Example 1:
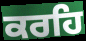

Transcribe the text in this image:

ਕਰਹਿ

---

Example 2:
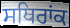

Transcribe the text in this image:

ਸਥਿਰਾਂਕ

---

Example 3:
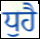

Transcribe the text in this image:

ਧੁਹੈ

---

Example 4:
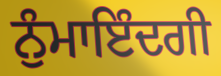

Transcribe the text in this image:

ਨੁੰਮਾਇੰਦਗੀ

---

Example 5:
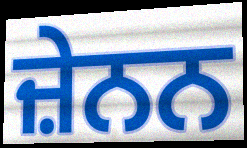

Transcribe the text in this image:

ਜ਼ੇਨਨ